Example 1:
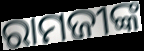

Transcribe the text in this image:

ରାମଜୀଙ୍କ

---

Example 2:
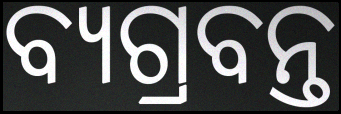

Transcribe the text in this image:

ବ୍ୟଗ୍ରବନ୍ତ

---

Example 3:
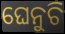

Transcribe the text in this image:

ଘେନୁଚି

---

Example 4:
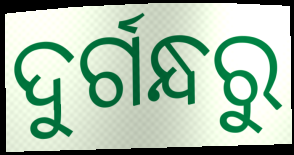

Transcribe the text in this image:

ଦୁର୍ଗନ୍ଧରୁ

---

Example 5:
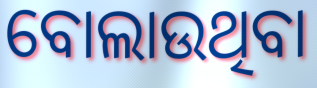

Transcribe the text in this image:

ବୋଲାଉଥିବା